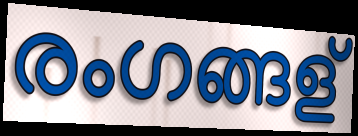
രംഗങ്ങള്